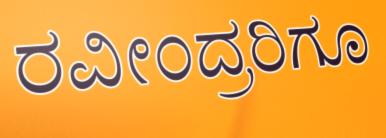
ರವೀಂದ್ರರಿಗೂ